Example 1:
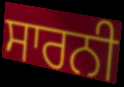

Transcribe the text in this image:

ਸਾਰਨੀ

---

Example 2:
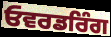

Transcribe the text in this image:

ਓਵਰਡਰਿੰਗ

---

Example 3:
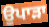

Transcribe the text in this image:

ਉਪਾੜਾ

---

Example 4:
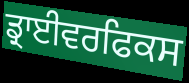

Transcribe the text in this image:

ਡ੍ਰਾਈਵਰਫਿਕਸ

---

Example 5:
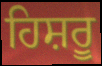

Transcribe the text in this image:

ਹਿਸ਼ਰੂ